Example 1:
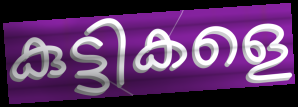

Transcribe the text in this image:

കുട്ടികളെ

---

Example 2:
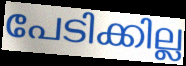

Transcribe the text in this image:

പേടിക്കില്ല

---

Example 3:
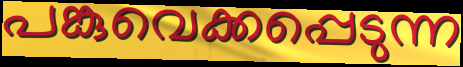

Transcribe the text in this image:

പങ്കുവെക്കപ്പെടുന്ന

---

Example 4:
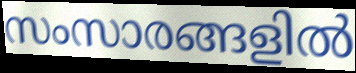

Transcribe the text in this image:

സംസാരങ്ങളിൽ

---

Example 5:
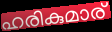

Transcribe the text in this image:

ഹരികുമാര്